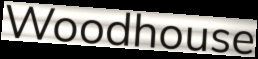
Woodhouse